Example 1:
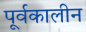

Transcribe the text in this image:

पूर्वकालीन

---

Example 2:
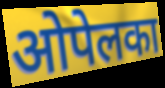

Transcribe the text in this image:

ओपेलका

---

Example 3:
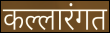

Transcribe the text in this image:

कल्लारंगत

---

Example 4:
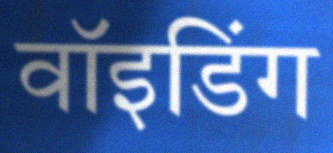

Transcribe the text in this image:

वॉइडिंग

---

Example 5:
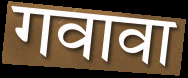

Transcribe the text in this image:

गवावा